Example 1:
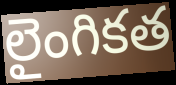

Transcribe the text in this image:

లైంగికత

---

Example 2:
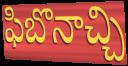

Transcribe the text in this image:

ఫిబొనాచ్చి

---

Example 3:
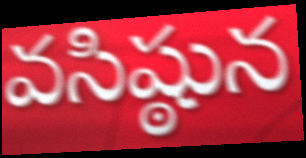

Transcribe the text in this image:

వసిష్ఠున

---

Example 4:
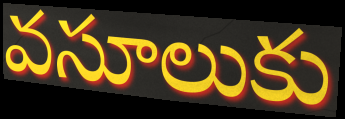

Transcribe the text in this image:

వసూలుకు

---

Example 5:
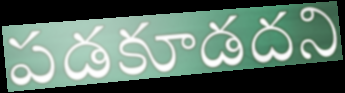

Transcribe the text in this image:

పడకూడదని